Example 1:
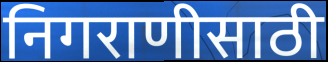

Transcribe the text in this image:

निगराणीसाठी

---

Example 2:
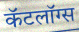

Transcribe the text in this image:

कॅटलॉग्स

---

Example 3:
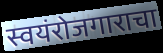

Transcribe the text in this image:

स्वयंरोजगाराचा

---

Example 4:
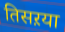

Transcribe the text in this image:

तिसऱया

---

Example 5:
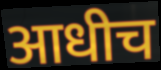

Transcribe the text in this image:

आधीच